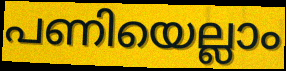
പണിയെല്ലാം